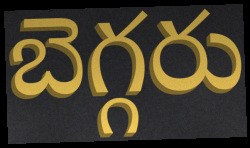
బెగ్గరు